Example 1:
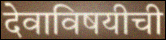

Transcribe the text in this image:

देवाविषयीची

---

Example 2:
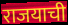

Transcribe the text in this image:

राजयाची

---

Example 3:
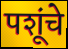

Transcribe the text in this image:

पशूंचे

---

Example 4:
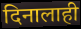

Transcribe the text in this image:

दिनालाही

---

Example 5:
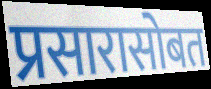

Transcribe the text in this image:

प्रसारासोबत